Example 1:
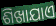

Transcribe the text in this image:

ଶିଖାଯାଏ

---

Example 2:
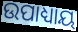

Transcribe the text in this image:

ଉପାଧ୍ୟାୟ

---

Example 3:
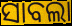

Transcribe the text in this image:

ସାବଲା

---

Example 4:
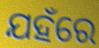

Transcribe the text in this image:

ଯହଁରେ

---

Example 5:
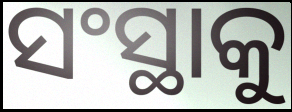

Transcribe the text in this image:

ସଂସ୍ଥାକୁ